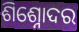
ଶିଶ୍ନୋଦର